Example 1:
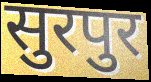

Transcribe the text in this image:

सुरपुर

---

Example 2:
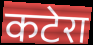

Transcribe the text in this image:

कटेरा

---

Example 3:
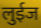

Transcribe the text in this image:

लुईज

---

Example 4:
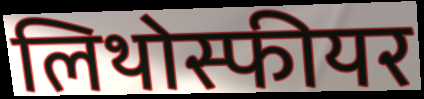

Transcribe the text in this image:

लिथोस्फीयर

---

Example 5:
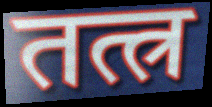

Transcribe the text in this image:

तत्त्र